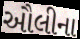
ઔલીના